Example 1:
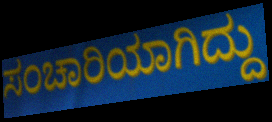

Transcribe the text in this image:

ಸಂಚಾರಿಯಾಗಿದ್ದು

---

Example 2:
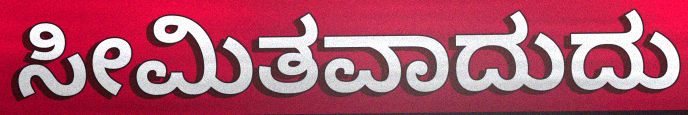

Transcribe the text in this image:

ಸೀಮಿತವಾದುದು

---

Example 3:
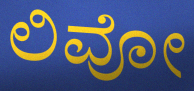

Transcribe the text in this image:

ಲಿವೋ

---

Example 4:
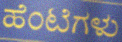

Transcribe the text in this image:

ಹೆಂಟೆಗಳು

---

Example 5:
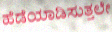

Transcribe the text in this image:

ಹೆಡೆಯಾಡಿಸುತ್ತಲೇ